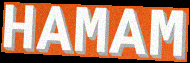
HAMAM